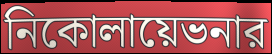
নিকোলায়েভনার